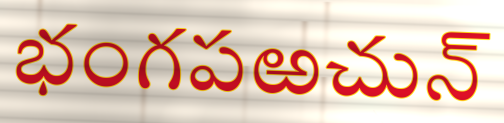
భంగపఱచున్